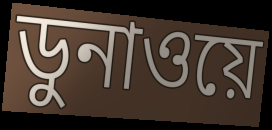
ডুনাওয়ে